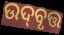
ଉଦ୍‌ବୃତ୍ତ